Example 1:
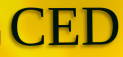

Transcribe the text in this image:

CED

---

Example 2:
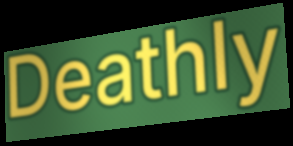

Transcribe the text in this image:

Deathly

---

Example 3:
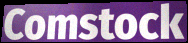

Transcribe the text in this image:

Comstock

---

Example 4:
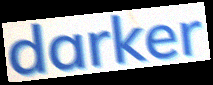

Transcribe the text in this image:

darker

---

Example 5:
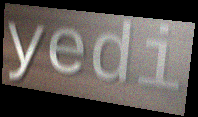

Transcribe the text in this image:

yedi